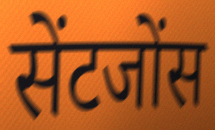
सेंटजोंस